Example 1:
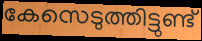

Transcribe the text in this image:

കേസെടുത്തിട്ടുണ്ട്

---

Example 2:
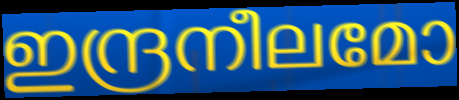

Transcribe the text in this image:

ഇന്ദ്രനീലമോ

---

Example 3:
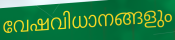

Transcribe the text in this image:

വേഷവിധാനങ്ങളും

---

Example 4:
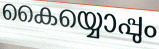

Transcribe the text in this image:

കൈയ്യൊപ്പും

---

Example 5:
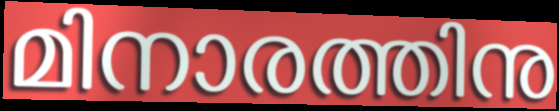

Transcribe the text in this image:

മിനാരത്തിനു